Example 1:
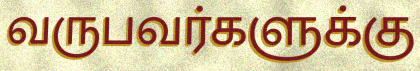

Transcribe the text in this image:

வருபவர்களுக்கு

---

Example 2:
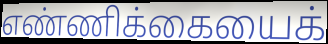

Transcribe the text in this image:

எண்ணிக்கையைக்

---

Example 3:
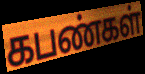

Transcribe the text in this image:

கபண்கள்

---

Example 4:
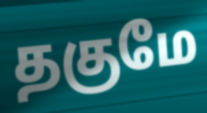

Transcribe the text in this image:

தகுமே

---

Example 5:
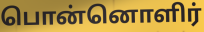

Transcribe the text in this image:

பொன்னொளிர்